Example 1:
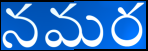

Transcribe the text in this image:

నమర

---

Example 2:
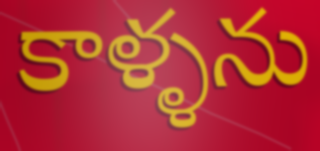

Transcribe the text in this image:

కాళ్ళను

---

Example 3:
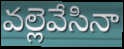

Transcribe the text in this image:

వల్లెవేసినా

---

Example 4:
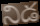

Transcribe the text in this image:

నిడ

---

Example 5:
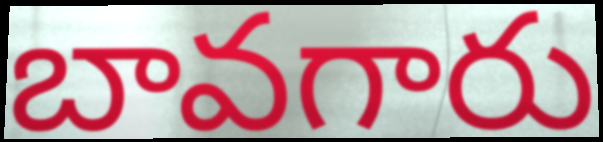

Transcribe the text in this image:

బావగారు